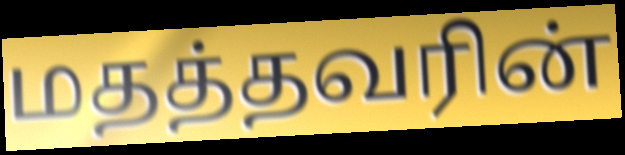
மதத்தவரின்